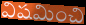
విషమించి